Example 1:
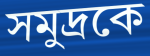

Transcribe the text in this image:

সমুদ্রকে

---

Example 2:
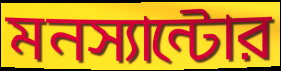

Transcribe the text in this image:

মনস্যান্টোর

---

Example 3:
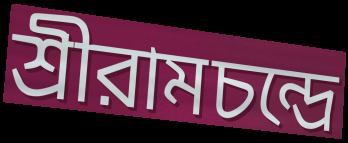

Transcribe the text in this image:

শ্রীরামচন্দ্রে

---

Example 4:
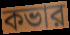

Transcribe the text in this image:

কভার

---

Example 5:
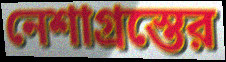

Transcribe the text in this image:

নেশাগ্রস্তের